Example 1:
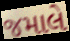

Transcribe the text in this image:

જમાલે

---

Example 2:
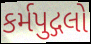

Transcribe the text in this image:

કર્મપુદ્ગલો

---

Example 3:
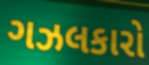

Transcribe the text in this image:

ગઝલકારો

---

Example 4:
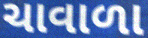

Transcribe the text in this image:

ચાવાળા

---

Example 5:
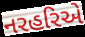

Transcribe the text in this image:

નરહરિએ